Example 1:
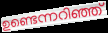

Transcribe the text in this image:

ഉണ്ടെന്നറിഞ്ഞ്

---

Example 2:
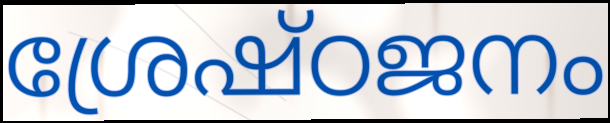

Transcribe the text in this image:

ശ്രേഷ്ഠജനം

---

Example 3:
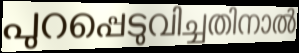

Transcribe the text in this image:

പുറപ്പെടുവിച്ചതിനാൽ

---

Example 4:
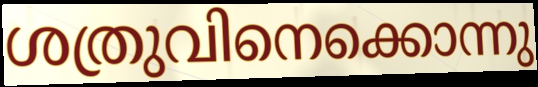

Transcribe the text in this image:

ശത്രുവിനെക്കൊന്നു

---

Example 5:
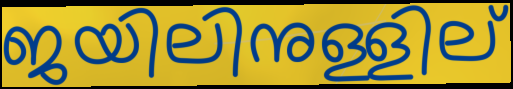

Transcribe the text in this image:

ജയിലിനുള്ളില്